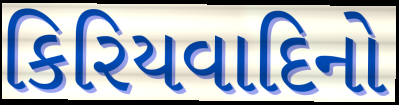
કિરિયવાદિનો